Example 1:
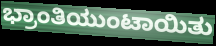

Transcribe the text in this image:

ಭ್ರಾಂತಿಯುಂಟಾಯಿತು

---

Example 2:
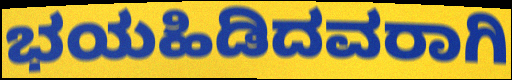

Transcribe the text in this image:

ಭಯಹಿಡಿದವರಾಗಿ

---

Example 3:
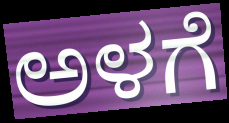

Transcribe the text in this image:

ಅಳಗೆ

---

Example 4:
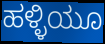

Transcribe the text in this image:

ಹಳ್ಳಿಯೂ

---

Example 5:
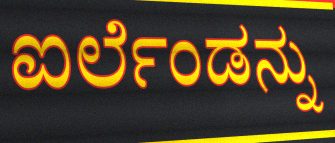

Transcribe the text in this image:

ಐರ್ಲೆಂಡನ್ನು